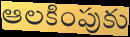
ఆలకింపుకు